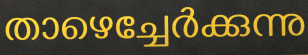
താഴെച്ചേർക്കുന്നു